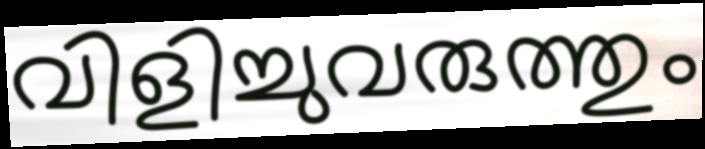
വിളിച്ചുവരുത്തും